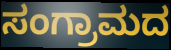
ಸಂಗ್ರಾಮದ